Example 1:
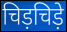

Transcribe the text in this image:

चिड़चिड़े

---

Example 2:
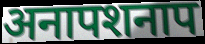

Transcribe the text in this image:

अनापशनाप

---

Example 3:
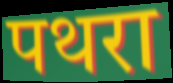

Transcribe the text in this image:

पथरा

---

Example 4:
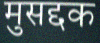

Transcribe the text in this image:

मुसद्दक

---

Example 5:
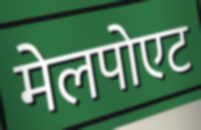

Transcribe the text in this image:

मेलपोएट